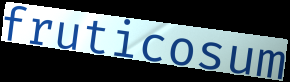
fruticosum